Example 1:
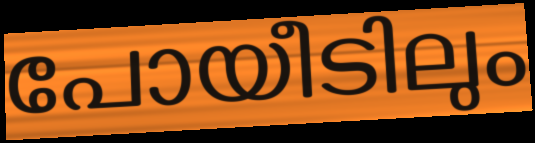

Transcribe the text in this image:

പോയീടിലും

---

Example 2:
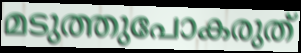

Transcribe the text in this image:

മടുത്തുപോകരുത്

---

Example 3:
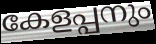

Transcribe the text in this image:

കേളപ്പനും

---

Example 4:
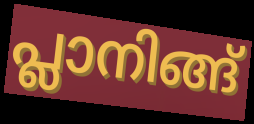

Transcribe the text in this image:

പ്ലാനിങ്ങ്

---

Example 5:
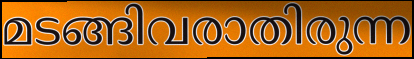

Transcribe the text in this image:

മടങ്ങിവരാതിരുന്ന